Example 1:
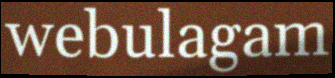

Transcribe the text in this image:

webulagam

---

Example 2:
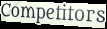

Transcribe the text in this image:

Competitors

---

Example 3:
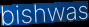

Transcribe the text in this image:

bishwas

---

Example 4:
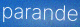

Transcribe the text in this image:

parande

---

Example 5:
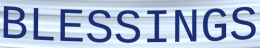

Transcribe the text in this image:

BLESSINGS